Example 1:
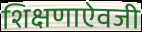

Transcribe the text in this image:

शिक्षणाऐवजी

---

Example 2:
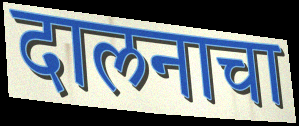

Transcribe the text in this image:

दालनाचा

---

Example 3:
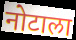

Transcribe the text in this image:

नोटाला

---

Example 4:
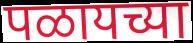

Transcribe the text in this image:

पळायच्या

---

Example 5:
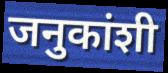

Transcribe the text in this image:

जनुकांशी